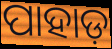
ପାହାଡ଼